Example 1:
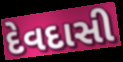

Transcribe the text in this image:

દેવદાસી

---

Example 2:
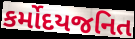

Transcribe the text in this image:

કર્મોદયજનિત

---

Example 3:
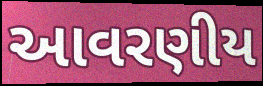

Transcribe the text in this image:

આવરણીય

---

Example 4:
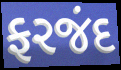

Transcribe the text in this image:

ફરજંદ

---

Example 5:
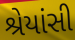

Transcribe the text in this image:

શ્રેયાંસી